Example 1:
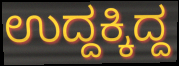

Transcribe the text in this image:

ಉದ್ದಕ್ಕಿದ್ದ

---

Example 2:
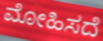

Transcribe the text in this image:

ಮೋಹಿಸದೆ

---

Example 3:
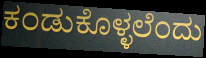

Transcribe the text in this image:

ಕಂಡುಕೊಳ್ಳಲೆಂದು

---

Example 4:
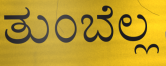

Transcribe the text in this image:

ತುಂಬೆಲ್ಲ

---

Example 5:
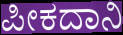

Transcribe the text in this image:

ಪೀಕದಾನಿ